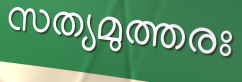
സത്യമുത്തരഃ